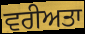
ਵਰੀਅਤਾ